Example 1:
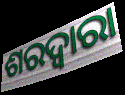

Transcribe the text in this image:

ଶରଦ୍ୱାରା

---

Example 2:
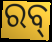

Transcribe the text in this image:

ରବ୍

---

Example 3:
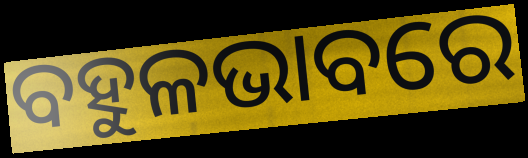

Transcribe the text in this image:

ବହୁଳଭାବରେ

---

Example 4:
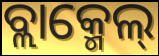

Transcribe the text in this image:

ବ୍ଲାକ୍ମେଲ୍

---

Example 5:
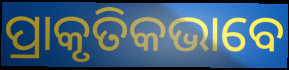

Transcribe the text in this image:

ପ୍ରାକୃତିକଭାବେ